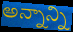
అన్నాన్ని